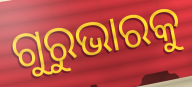
ଗୁରୁଭାରକୁ